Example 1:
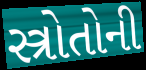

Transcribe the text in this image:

સ્ત્રોતોની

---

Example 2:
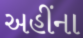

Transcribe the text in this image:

અહીંના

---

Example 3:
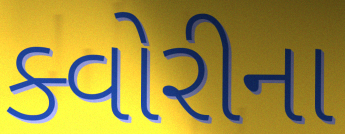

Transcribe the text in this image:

ક્વોરીના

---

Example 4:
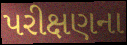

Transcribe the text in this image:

પરીક્ષણના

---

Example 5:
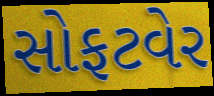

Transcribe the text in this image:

સોફટવેર